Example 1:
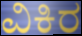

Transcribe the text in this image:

ವಿಕಿರ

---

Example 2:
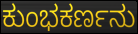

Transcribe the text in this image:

ಕುಂಭಕರ್ಣನು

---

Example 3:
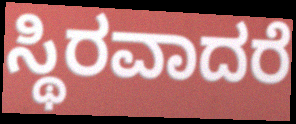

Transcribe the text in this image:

ಸ್ಥಿರವಾದರೆ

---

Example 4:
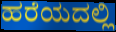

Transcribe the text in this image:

ಹರೆಯದಲ್ಲಿ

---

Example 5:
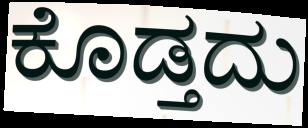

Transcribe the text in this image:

ಕೊಡ್ತದು